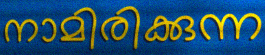
നാമിരിക്കുന്ന